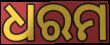
ଧରମ